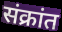
संक्रांत